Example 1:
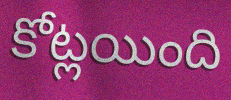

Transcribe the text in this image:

కోట్లయింది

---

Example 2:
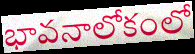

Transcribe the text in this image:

భావనాలోకంలో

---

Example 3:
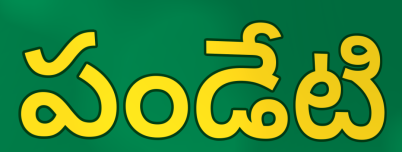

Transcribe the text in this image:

పండేటి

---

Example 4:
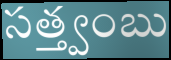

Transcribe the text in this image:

సత్త్వంబు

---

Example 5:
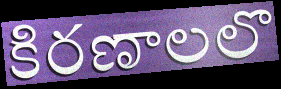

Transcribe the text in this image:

కిరణాలలొ